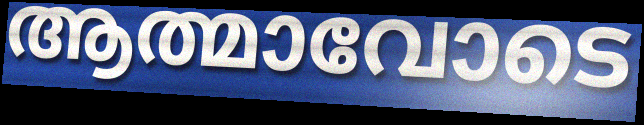
ആത്മാവോടെ